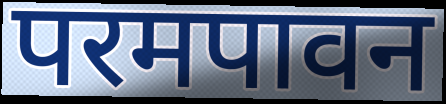
परमपावन